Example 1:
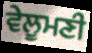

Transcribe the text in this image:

ਵੇਲੂਮਣੀ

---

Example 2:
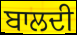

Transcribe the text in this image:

ਬਾਲਦੀ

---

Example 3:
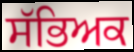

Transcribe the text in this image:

ਸੱਭਿਅਕ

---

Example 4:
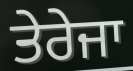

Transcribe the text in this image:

ਤੇਰੇਜਾ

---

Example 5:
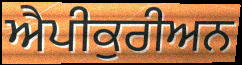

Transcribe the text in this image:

ਐਪੀਕੁਰੀਅਨ